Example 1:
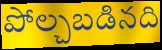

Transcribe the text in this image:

పోల్చబడినది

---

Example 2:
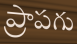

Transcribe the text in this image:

ప్రాపగు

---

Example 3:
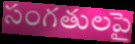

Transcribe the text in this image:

సంగతులపై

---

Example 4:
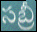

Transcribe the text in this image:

సబ్రీ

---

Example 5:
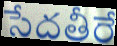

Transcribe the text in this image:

సేదతీరే